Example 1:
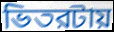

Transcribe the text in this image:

ভিতরটায়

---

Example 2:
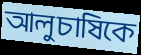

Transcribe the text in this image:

আলুচাষিকে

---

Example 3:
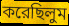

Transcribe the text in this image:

করেছিলুম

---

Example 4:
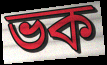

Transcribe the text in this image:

ভক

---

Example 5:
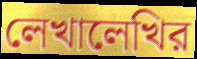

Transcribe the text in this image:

লেখালেখির